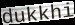
dukkhi